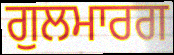
ਗੁਲਮਾਰਗ